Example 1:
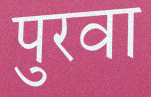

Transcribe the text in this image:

पुरवा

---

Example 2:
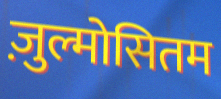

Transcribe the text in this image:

ज़ुल्मोसितम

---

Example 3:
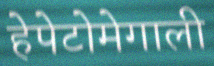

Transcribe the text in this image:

हेपेटोमेगाली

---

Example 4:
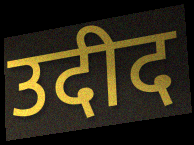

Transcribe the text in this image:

उदीद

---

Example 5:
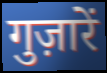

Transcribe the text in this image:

गुज़ारें